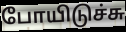
போயிடுச்சு